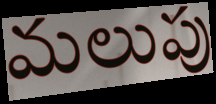
మలుపు